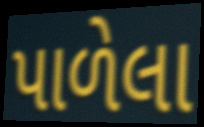
પાળેલા